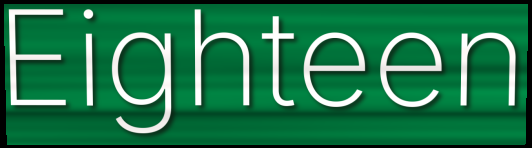
Eighteen